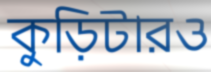
কুড়িটারও